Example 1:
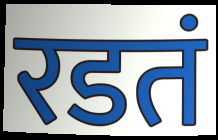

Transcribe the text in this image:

रडतं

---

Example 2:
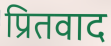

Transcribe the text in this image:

प्रितवाद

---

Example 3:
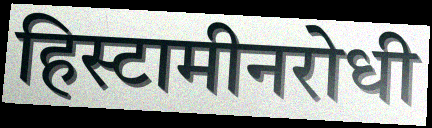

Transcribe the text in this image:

हिस्टामीनरोधी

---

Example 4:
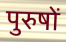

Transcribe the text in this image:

पुरुषों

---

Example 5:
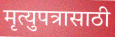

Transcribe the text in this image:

मृत्युपत्रासाठी